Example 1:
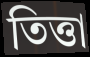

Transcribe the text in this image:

তিত্তা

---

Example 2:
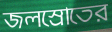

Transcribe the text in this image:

জলস্রোতের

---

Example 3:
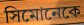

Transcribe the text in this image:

সিমোনেকে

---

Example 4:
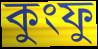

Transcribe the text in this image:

কুংফু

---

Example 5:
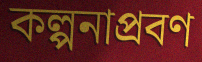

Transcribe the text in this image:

কল্পনাপ্রবণ